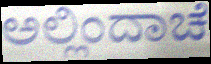
ಅಲ್ಲಿಂದಾಚೆ